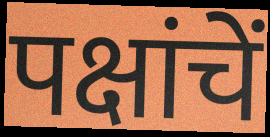
पक्षांचें